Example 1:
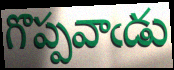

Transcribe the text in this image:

గొప్పవాఁడు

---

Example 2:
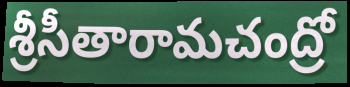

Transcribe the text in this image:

శ్రీసీతారామచంద్రో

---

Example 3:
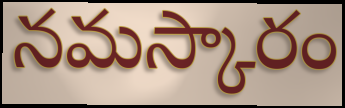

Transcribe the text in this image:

నమస్కారం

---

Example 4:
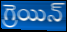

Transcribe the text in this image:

గ్రెయిన్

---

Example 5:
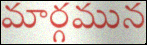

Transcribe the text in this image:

మార్గమున